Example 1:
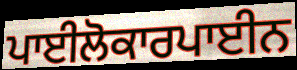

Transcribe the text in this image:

ਪਾਈਲੋਕਾਰਪਾਈਨ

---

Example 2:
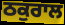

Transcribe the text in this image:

ਠਕੁਰਾਲ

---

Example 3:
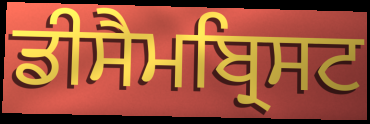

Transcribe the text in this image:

ਡੀਸੈਮਬ੍ਰਿਸਟ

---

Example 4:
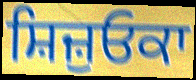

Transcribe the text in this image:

ਸ਼ਿਜ਼ੁਓਕਾ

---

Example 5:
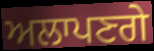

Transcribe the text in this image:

ਅਲਾਪਣਗੇ